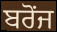
ਬਰੋਂਜ